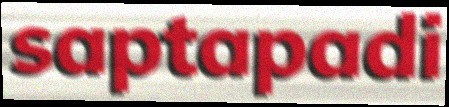
saptapadi